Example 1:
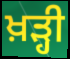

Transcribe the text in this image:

ਖ਼ੜ੍ਹੀ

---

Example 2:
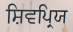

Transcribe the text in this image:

ਸ਼ਿਵਪ੍ਰਿਯ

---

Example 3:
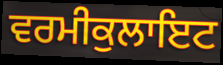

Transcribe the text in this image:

ਵਰਮੀਕੁਲਾਇਟ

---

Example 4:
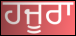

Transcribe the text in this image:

ਹਜੂਰਾ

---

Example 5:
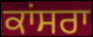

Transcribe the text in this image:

ਕਾਂਸਰਾ